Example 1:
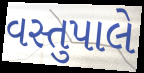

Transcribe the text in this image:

વસ્તુપાલે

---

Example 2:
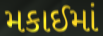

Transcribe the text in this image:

મકાઈમાં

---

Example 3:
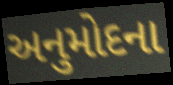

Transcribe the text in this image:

અનુમોદના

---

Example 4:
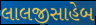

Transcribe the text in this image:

લાલજીસાહેબ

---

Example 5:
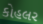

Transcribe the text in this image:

કોહલર